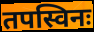
तपस्विनः